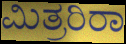
ಮಿತ್ರರಿರಾ